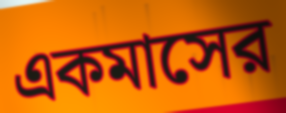
একমাসের